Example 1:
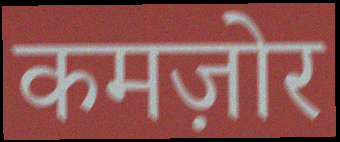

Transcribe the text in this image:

कमज़ोर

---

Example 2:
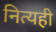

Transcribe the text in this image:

नित्यही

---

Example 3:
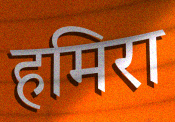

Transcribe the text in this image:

हमिरा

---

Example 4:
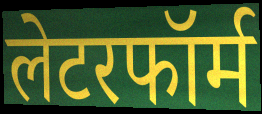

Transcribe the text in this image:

लेटरफॉर्म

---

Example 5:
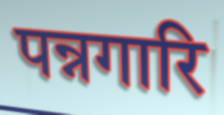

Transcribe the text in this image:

पन्नगारि